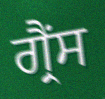
ਗ੍ਰੈਂਸ